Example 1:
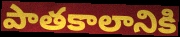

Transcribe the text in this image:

పాతకాలానికి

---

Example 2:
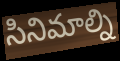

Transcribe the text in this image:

సినిమాల్ని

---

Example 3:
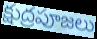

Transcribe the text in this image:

క్షుద్రపూజలు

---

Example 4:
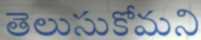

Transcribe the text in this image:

తెలుసుకోమని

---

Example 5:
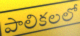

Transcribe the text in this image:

పాలికలలో